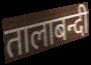
तालाबन्दी